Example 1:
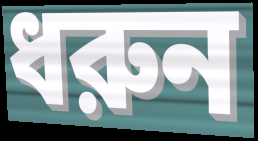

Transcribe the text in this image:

ধরুন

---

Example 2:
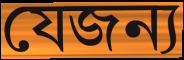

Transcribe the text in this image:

যেজন্য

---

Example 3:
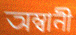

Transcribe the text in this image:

অম্বানী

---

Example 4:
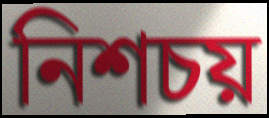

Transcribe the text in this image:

নিশচয়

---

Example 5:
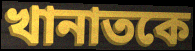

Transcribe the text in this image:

খানাতকে